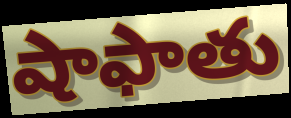
షాఫాతు